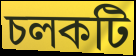
চলকটি